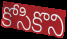
కోసికొని